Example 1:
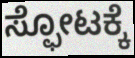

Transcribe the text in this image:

ಸ್ಫೋಟಕ್ಕೆ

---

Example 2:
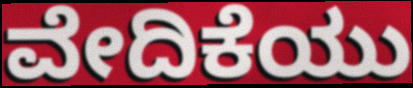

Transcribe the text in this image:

ವೇದಿಕೆಯು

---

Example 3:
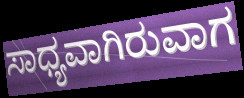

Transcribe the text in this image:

ಸಾಧ್ಯವಾಗಿರುವಾಗ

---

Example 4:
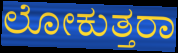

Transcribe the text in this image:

ಲೋಕುತ್ತರಾ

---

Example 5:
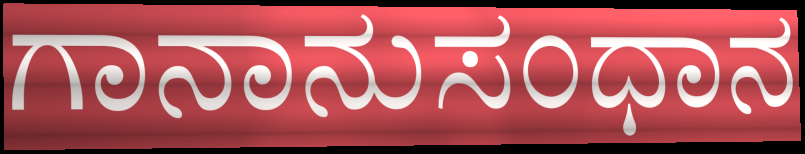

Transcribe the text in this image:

ಗಾನಾನುಸಂಧಾನ